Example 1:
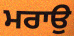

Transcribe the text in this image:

ਮਰਾਉ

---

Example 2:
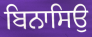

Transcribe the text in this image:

ਬਿਨਾਸਿਉ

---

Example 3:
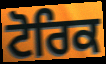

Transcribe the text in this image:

ਟੋਰਿਕ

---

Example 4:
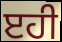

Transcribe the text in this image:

ੲਹੀ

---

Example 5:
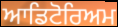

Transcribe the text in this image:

ਆਡਿਟੋਰਿਅਮ